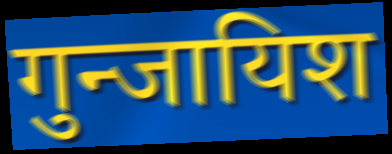
गुन्जायिश